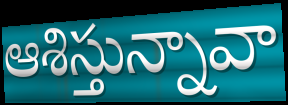
ఆశిస్తున్నావా